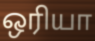
ஒரியா